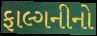
ફાલ્ગનીનો